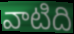
వాటిది